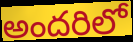
అందరిలో